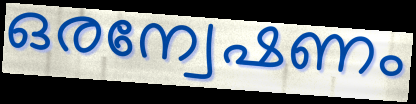
ഒരന്വേഷണം